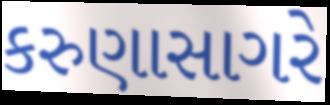
કરુણાસાગરે